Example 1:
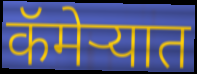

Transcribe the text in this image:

कॅमेऱ्यात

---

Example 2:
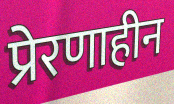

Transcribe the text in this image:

प्रेरणाहीन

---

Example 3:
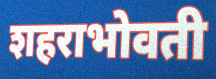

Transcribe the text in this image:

शहराभोवती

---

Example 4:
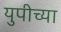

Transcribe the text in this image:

युपीच्या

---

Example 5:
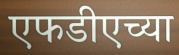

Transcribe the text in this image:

एफडीएच्या